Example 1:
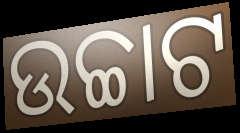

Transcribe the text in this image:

ଉଚ୍ଚାଟ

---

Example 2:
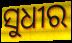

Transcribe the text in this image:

ସୁଧୀର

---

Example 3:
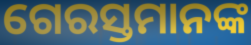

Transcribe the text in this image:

ଗେରସ୍ତମାନଙ୍କ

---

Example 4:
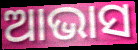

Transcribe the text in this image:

ଆଭାସ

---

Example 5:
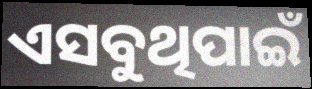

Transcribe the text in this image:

ଏସବୁଥିପାଇଁ